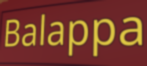
Balappa